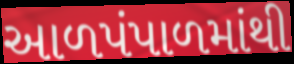
આળપંપાળમાંથી